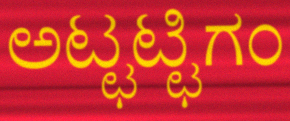
ಅಟ್ಟಟ್ಟಿಗಂ